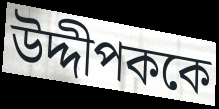
উদ্দীপককে